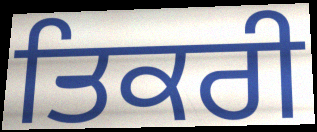
ਤਿਕਰੀ